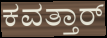
ಕವತ್ತಾರ್